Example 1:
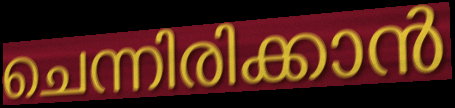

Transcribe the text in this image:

ചെന്നിരിക്കാൻ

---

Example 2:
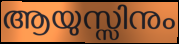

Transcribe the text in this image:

ആയുസ്സിനും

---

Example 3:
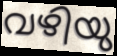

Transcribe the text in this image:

വഴിയു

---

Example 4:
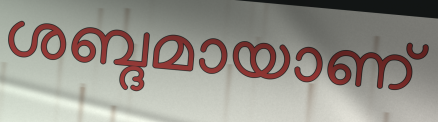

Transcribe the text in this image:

ശബ്ദമായാണ്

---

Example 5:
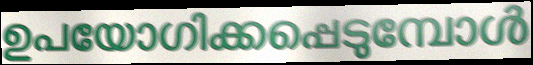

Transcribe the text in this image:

ഉപയോഗിക്കപ്പെടുമ്പോൾ